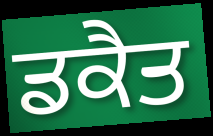
ਡਕੈਤ